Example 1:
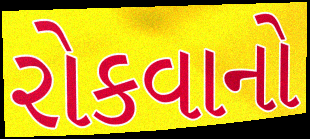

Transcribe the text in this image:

રોકવાનો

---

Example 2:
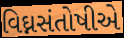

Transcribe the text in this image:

વિઘ્નસંતોષીએ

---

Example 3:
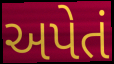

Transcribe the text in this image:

અપેતં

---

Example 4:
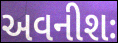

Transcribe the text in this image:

અવનીશઃ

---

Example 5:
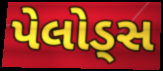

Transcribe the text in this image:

પેલોડ્સ